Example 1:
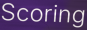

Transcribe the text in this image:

Scoring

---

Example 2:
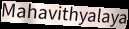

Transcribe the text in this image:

Mahavithyalaya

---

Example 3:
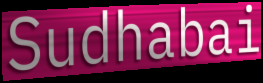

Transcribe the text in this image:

Sudhabai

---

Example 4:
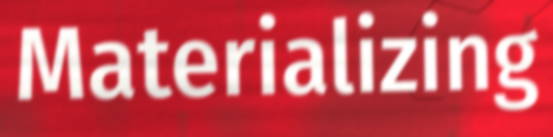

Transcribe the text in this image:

Materializing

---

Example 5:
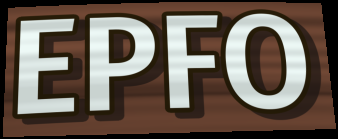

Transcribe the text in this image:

EPFO